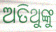
ଅତିଥୁଙ୍କୁ